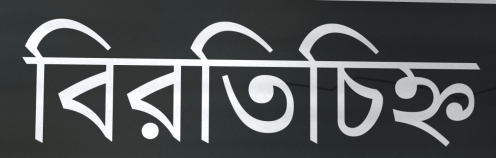
বিরতিচিহ্ন